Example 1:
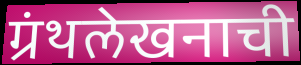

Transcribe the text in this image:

ग्रंथलेखनाची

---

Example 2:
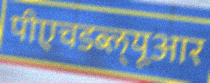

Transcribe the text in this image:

पीएचडब्ल्यूआर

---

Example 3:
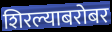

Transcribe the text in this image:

शिरल्याबरोबर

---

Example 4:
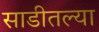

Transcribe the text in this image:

साडीतल्या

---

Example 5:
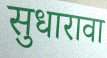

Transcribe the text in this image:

सुधारावा